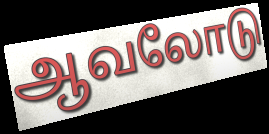
ஆவலோடு